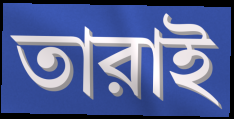
তারাই